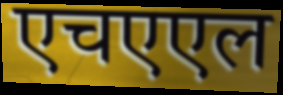
एचएएल